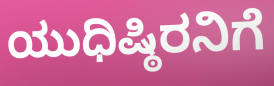
ಯುಧಿಷ್ಠಿರನಿಗೆ